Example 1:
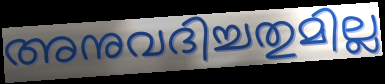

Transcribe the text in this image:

അനുവദിച്ചതുമില്ല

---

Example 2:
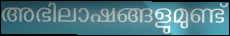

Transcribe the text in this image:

അഭിലാഷങ്ങളുമുണ്ട്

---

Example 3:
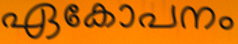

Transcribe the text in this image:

ഏകോപനം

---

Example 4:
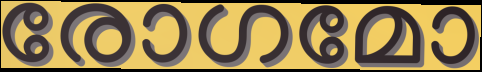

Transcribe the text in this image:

രോഗമോ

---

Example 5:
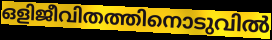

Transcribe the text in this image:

ഒളിജീവിതത്തിനൊടുവിൽ